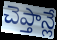
చెప్తాన్లే